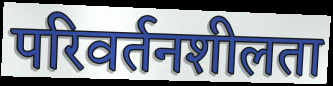
परिवर्तनशीलता